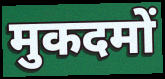
मुकदमों